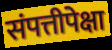
संपत्तीपेक्षा